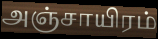
அஞ்சாயிரம்